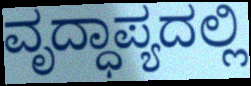
ವೃದ್ಧಾಪ್ಯದಲ್ಲಿ